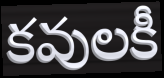
కవులకీ